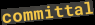
committal